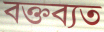
বক্তব্যত